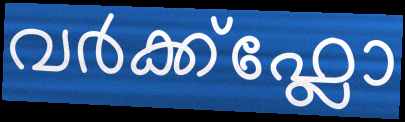
വർക്ക്ഫ്ലോ